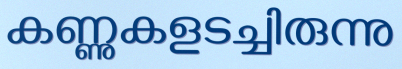
കണ്ണുകളടച്ചിരുന്നു